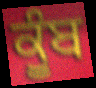
ਕੂੰਬ